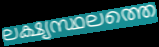
ലക്ഷ്യസ്ഥലത്തെ